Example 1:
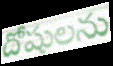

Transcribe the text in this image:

దోషులను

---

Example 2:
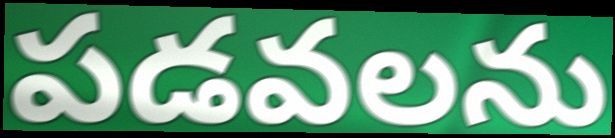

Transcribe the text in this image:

పడవలను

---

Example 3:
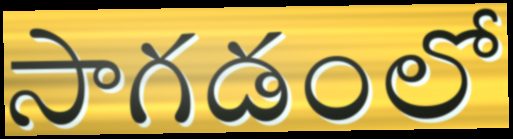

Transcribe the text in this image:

సాగడంలో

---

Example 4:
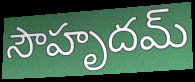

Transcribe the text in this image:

సౌహృదమ్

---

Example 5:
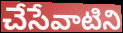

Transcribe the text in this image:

చేసేవాటిని